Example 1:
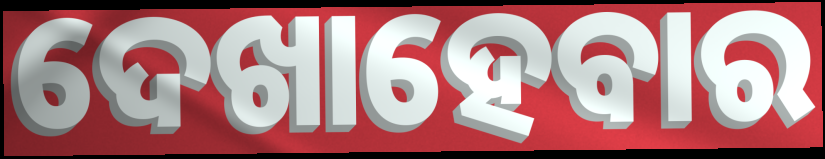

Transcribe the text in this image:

ଦେଖାହେବାର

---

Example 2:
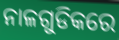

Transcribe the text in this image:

ନାଳଗୁଡିକରେ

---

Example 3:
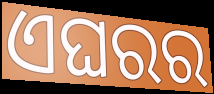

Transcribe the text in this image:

ଏଘରର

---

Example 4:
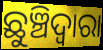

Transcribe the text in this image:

ଛୁଞ୍ଚିଦ୍ଵାରା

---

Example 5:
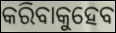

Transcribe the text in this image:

କରିବାକୁହେବ